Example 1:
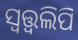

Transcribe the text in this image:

ସ୍ୱତ୍ତ୍ୱଲିପି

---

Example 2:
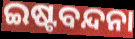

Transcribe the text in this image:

ଇଷ୍ଟବନ୍ଦନା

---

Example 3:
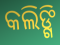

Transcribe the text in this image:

କଲିଙ୍ଗି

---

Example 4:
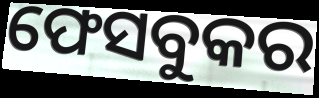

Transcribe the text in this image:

ଫେସବୁକର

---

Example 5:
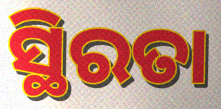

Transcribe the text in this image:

ସ୍ଥିରତା